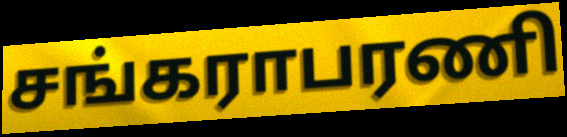
சங்கராபரணி